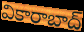
వికారాబాద్